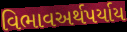
વિભાવઅર્થપર્યાય